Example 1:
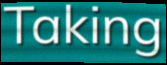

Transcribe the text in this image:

Taking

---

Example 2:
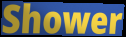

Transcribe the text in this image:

Shower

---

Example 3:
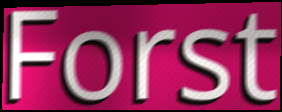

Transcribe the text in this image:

Forst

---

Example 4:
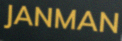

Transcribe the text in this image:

JANMAN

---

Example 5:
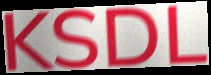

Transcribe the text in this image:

KSDL